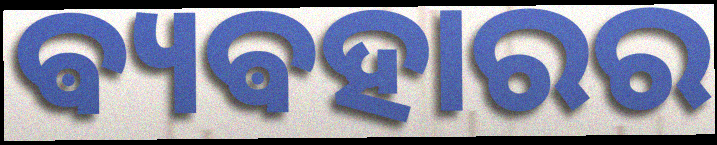
ଵ୍ୟଵହାରର